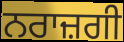
ਨਰਾਜ਼ਗੀ